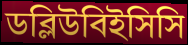
ডব্লিউবিইসিসি